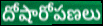
దోషారోపణలు